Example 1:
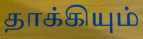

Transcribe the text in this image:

தாக்கியும்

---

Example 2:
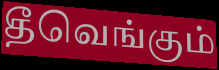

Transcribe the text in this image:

தீவெங்கும்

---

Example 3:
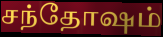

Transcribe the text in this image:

சந்தோஷம்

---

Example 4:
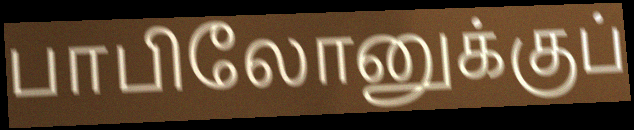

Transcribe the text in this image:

பாபிலோனுக்குப்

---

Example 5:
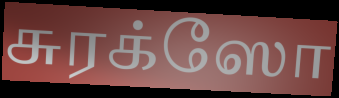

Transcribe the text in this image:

சுரக்ஸோ